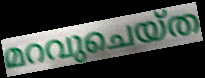
മറവുചെയ്ത